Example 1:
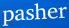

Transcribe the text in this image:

pasher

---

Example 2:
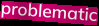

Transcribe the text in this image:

problematic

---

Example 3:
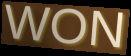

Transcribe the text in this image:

WON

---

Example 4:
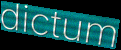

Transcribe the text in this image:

dictum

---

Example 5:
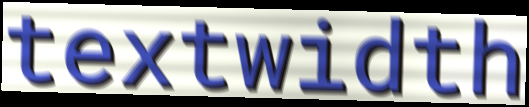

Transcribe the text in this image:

textwidth